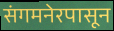
संगमनेरपासून